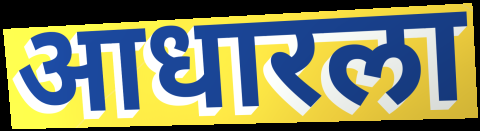
आधारला